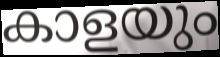
കാളയും